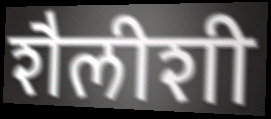
शैलीशी